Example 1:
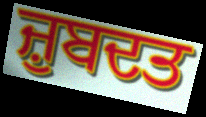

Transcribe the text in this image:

ਜ਼ੁਬਦਤ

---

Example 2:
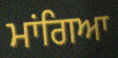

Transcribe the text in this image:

ਮਾਂਗਿਆ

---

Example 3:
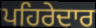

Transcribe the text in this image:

ਪਹਿਰੇਦਾਰ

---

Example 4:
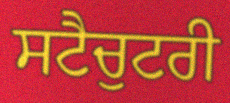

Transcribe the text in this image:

ਸਟੈਚੁਟਰੀ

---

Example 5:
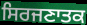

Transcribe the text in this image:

ਸਿਰਜਣਾਤਕ